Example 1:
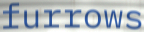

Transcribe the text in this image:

furrows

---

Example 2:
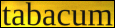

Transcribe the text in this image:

tabacum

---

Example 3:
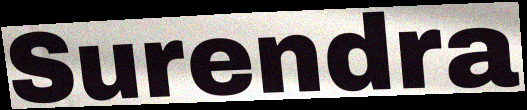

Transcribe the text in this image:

Surendra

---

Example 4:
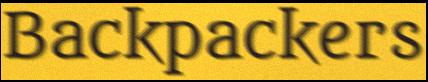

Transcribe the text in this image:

Backpackers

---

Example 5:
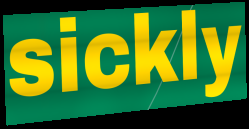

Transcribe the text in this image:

sickly